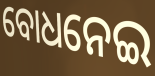
ବୋଧନେଇ